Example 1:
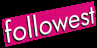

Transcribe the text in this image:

followest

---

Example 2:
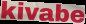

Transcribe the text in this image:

kivabe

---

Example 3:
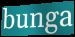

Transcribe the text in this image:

bunga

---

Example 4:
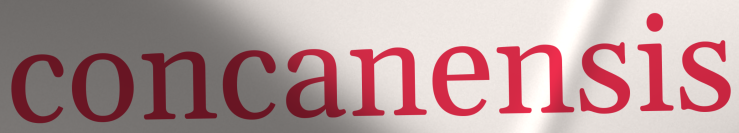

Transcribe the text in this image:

concanensis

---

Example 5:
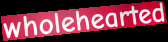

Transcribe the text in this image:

wholehearted